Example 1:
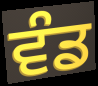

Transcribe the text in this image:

ਵੰਡ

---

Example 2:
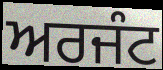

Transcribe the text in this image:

ਅਰਜੰਟ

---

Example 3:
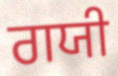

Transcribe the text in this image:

ਗਯੀ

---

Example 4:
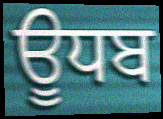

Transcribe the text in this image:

ਊਧਬ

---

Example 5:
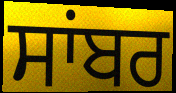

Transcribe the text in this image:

ਸਾਂਬਰ